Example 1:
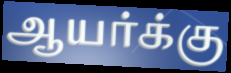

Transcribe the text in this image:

ஆயர்க்கு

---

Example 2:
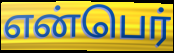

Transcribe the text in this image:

என்பெர்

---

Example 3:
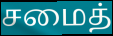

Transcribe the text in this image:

சமைத்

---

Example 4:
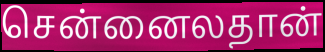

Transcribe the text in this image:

சென்னைலதான்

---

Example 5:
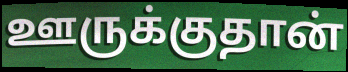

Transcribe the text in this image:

ஊருக்குதான்